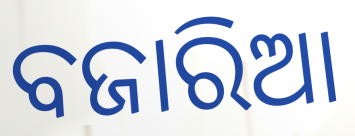
ବଜାରିଆ